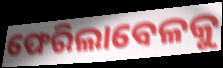
ଫେରିଲାବେଳକୁ